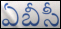
ఏబీసీ